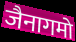
जैनागमो